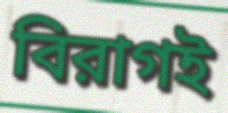
বিরাগই